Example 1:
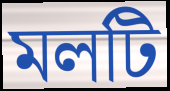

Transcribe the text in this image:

মলটি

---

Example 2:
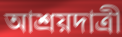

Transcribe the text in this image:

আশ্রয়দাত্রী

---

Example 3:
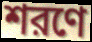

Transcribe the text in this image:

শরণে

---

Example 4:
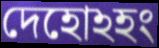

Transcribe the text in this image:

দেহোঽহং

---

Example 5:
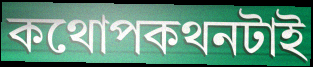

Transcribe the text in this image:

কথোপকথনটাই